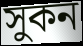
সুকন